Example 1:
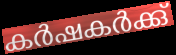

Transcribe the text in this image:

കർഷകർക്കു്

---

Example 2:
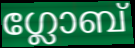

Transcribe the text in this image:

ഗ്ലോബ്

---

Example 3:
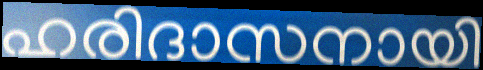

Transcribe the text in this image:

ഹരിദാസനായി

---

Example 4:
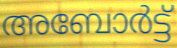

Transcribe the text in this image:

അബോർട്ട്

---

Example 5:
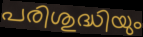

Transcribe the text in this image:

പരിശുദ്ധിയും